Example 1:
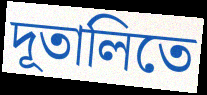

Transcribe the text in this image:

দূতালিতে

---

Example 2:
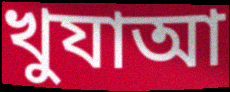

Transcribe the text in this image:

খুযাআ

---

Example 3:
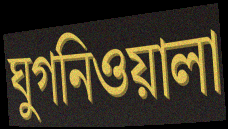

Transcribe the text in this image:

ঘুগনিওয়ালা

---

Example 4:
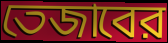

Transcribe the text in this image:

তেজাবের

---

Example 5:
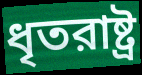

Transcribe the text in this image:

ধৃতরাষ্ট্র